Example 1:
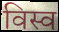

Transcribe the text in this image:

विस्व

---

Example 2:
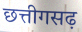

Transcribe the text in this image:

छत्तीगसढ़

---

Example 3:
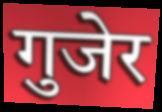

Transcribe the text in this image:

गुजेर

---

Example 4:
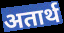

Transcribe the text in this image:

अतार्थ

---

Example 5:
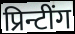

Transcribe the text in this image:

प्रिन्टींग